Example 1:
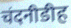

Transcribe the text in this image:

चंदनीडीह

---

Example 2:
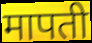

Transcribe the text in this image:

मापती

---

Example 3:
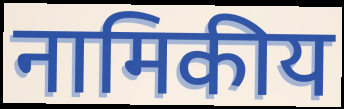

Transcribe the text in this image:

नामिकीय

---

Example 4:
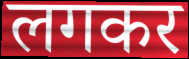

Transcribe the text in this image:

लगकर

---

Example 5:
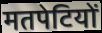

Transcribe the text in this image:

मतपेटियों